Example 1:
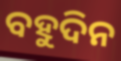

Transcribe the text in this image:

ବହୁଦିନ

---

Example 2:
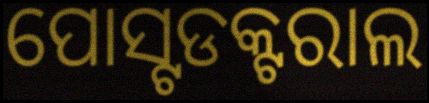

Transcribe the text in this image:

ପୋସ୍ଟଡକ୍ଟରାଲ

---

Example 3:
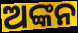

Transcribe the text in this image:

ଅଙ୍କନ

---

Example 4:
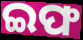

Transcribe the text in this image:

ଇଫ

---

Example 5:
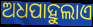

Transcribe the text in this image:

ଅଧପାହୁଲାଏ